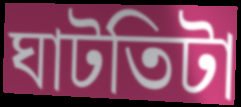
ঘাটতিটা